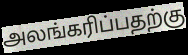
அலங்கரிப்பதற்கு